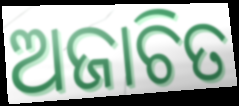
ଅଜାଚିତ